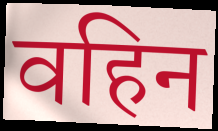
वहिन